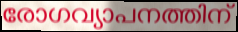
രോഗവ്യാപനത്തിന്